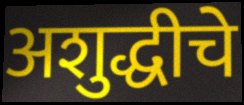
अशुद्धीचे